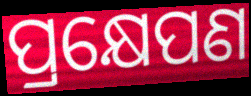
ପ୍ରକ୍ଷେପଣ